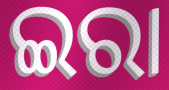
ଇରା